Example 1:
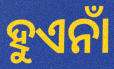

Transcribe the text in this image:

ହୁଏନାଁ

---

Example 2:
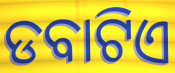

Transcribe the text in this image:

ଡବାଟିଏ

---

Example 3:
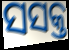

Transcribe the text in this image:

ସସକ୍ତ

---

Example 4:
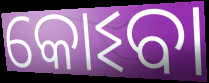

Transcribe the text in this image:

କୋଽବା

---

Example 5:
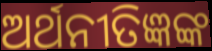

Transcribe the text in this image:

ଅର୍ଥନୀତିଜ୍ଞଙ୍କ